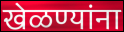
खेळण्यांना